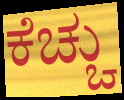
ಕೆಚ್ಚು